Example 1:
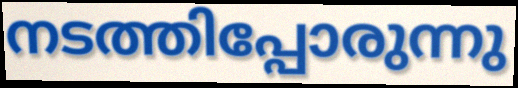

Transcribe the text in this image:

നടത്തിപ്പോരുന്നു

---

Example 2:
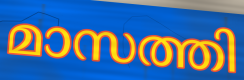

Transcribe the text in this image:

മാസത്തി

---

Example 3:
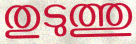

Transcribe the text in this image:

തുടുത്തു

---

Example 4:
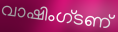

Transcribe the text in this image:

വാഷിംഗ്ടണ്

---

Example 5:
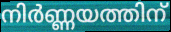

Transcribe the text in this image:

നിർണ്ണയത്തിന്